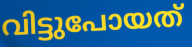
വിട്ടുപോയത്